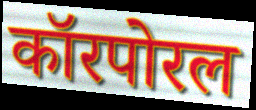
कॉरपोरल